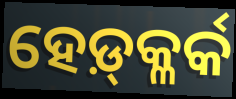
ହେଡ଼୍‍କ୍ଳର୍କ